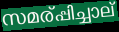
സമര്പ്പിച്ചാല്